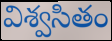
విశ్వసితం